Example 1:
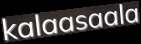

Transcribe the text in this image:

kalaasaala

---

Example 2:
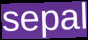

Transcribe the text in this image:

sepal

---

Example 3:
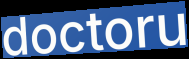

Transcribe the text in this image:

doctoru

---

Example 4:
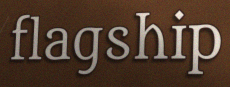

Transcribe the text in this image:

flagship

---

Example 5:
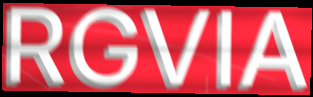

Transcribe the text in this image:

RGVIA